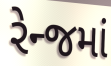
રેન્જમાં